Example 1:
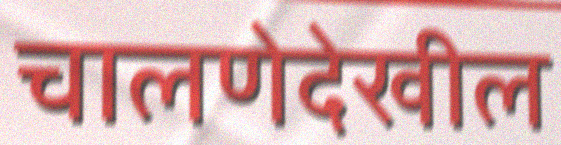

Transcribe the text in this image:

चालणेदेखील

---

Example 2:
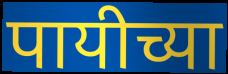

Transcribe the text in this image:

पायीच्या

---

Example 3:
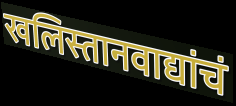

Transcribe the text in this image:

खलिस्तानवाद्यांचं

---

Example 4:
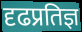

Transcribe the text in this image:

दृढप्रतिज्ञ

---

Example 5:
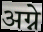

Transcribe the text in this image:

अग्ने